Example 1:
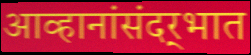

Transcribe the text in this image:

आव्हानांसंदर्भात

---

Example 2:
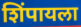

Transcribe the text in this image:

शिंपायला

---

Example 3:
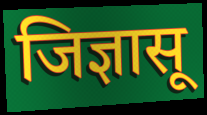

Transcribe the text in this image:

जिज्ञासू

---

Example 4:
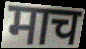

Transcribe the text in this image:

माच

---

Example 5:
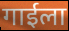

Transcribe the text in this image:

गाईला